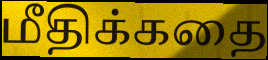
மீதிக்கதை